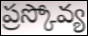
ప్రస్కోవ్య